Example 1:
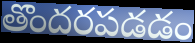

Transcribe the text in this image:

తొందరపడడం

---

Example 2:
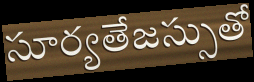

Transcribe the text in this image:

సూర్యతేజస్సుతో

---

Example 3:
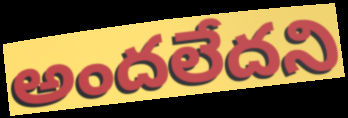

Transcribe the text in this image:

అందలేదని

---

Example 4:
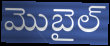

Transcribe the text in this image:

మొబైల్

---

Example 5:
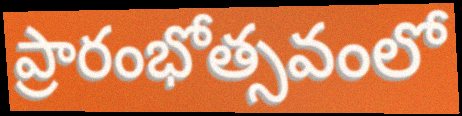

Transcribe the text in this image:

ప్రారంభోత్సవంలో